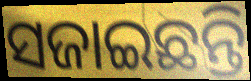
ସଜାଇଛନ୍ତି